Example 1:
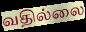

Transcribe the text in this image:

வதில்லை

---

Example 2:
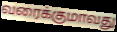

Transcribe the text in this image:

வரைக்குமாவது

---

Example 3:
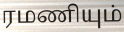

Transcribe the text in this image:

ரமணியும்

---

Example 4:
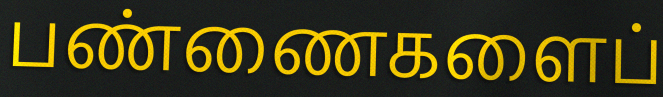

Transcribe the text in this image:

பண்ணைகளைப்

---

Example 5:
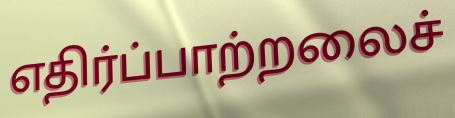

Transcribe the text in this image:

எதிர்ப்பாற்றலைச்